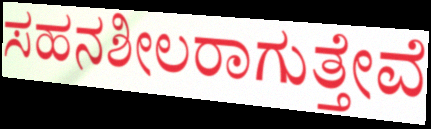
ಸಹನಶೀಲರಾಗುತ್ತೇವೆ